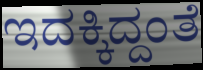
ಇದಕ್ಕಿದ್ದಂತೆ